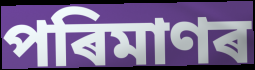
পৰিমাণৰ